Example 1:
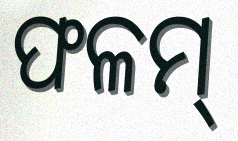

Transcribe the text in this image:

ଫଳମ୍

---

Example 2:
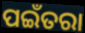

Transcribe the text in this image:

ପଇଁତରା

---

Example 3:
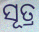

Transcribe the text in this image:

ସୂତ୍ର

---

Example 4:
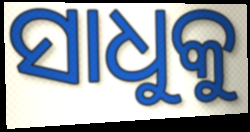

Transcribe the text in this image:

ସାଧୁକୁ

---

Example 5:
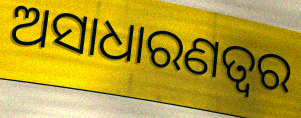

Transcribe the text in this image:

ଅସାଧାରଣତ୍ୱର